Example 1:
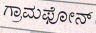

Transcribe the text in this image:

ಗ್ರಾಮಫೋನ್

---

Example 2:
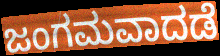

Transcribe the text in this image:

ಜಂಗಮವಾದಡೆ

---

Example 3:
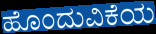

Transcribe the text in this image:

ಹೊಂದುವಿಕೆಯ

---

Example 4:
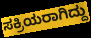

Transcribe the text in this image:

ಸಕ್ರಿಯರಾಗಿದ್ದು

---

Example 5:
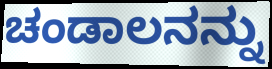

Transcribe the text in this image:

ಚಂಡಾಲನನ್ನು